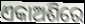
ଏକାଅଶିରେ